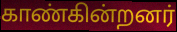
காண்கின்றனர்